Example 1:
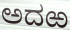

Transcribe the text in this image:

ಅದಱ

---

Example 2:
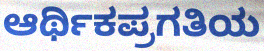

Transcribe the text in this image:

ಆರ್ಥಿಕಪ್ರಗತಿಯ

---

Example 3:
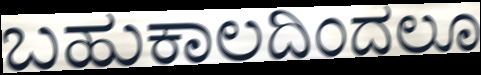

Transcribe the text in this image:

ಬಹುಕಾಲದಿಂದಲೂ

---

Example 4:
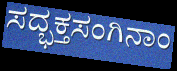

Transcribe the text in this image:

ಸದ್ಭಕ್ತಸಂಗಿನಾಂ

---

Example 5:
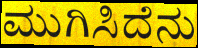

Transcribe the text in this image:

ಮುಗಿಸಿದೆನು